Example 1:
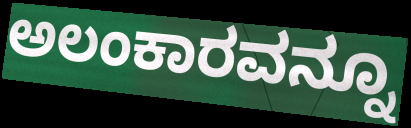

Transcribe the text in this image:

ಅಲಂಕಾರವನ್ನೂ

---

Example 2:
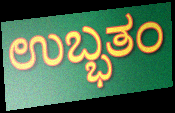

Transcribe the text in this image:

ಉಬ್ಭತಂ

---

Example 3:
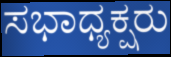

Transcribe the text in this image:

ಸಭಾಧ್ಯಕ್ಷರು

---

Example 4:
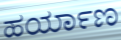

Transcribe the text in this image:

ಹರ್ಯಾಣ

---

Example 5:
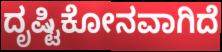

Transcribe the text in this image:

ದೃಷ್ಟಿಕೋನವಾಗಿದೆ